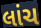
લાંચ